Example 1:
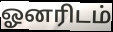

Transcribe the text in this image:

ஓனரிடம்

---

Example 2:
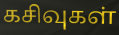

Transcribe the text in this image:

கசிவுகள்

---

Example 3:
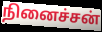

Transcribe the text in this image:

நினைச்சன்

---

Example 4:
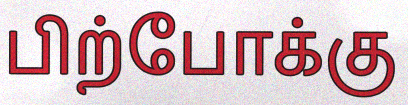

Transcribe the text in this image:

பிற்போக்கு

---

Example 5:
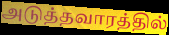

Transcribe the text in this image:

அடுத்தவாரத்தில்